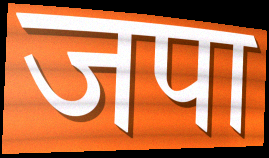
जपा